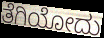
ತೆಗಿಯೋದು